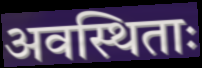
अवस्थिताः